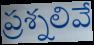
ప్రశ్నలివే